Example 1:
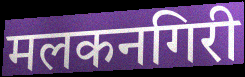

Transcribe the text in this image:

मलकनगिरी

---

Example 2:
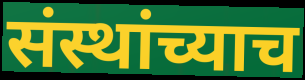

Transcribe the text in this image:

संस्थांच्याच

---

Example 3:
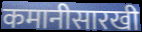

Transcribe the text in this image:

कमानीसारखी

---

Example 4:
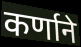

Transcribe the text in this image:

कर्णाने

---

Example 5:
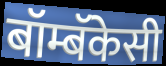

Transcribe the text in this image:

बॉम्बॅकेसी